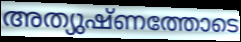
അത്യുഷ്ണത്തോടെ